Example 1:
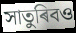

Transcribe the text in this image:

সাতুৰিবও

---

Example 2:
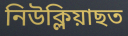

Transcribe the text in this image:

নিউক্লিয়াছত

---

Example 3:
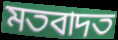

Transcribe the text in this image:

মতবাদত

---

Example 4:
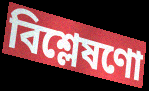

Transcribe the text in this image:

বিশ্লেষণো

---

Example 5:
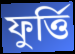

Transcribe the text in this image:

ফুৰ্ত্তি